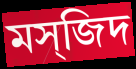
মস্জিদ